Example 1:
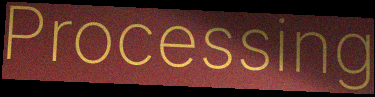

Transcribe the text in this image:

Processing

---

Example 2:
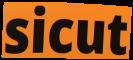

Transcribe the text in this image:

sicut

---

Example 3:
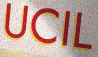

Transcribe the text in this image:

UCIL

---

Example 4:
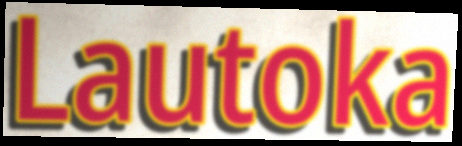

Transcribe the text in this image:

Lautoka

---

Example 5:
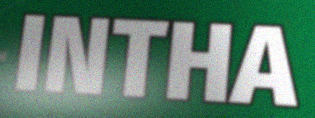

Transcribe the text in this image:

INTHA